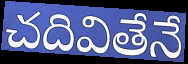
చదివితేనే